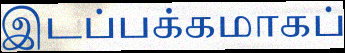
இடப்பக்கமாகப்